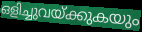
ഒളിച്ചുവയ്ക്കുകയും